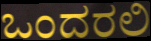
ಒಂದರಲಿ